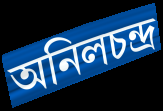
অনিলচন্দ্র